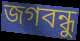
জগবন্ধু